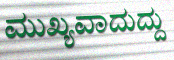
ಮುಖ್ಯವಾದುದ್ದು